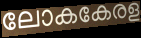
ലോകകേരള